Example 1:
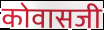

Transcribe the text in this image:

कोवासजी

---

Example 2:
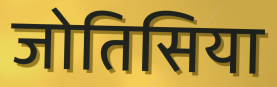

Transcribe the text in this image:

जोतिसिया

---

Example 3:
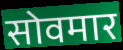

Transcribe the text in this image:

सोवमार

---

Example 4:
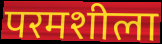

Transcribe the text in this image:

परमशीला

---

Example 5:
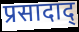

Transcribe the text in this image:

प्रसादाद्